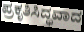
ಪ್ರಕೃತಿಸಿದ್ಧವಾದ